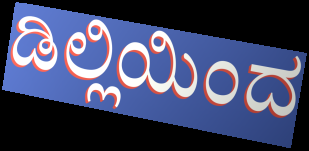
ಡಿಲ್ಲಿಯಿಂದ